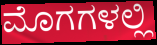
ಮೊಗಗಳಲ್ಲಿ